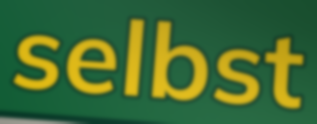
selbst